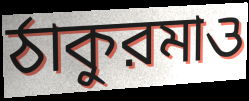
ঠাকুরমাও